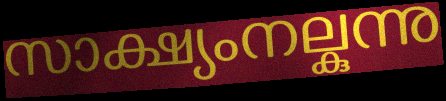
സാക്ഷ്യംനല്കുന്നു